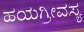
ಹಯಗ್ರೀವಸ್ಯ